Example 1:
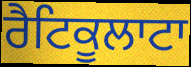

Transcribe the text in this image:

ਰੈਟਿਕੂਲਾਟਾ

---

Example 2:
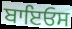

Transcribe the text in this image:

ਬਾਇਓਸ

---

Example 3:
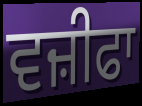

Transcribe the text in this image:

ਵਜ਼ੀਫਾ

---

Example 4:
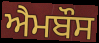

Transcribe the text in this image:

ਐਮਬੌਸ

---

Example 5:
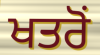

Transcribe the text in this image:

ਖਤਰੋਂ